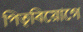
পিতৃবিয়োগে